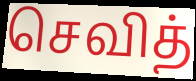
செவித்